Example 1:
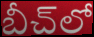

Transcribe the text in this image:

బీచ్‌లో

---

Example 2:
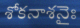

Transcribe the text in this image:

శోకనాశనైః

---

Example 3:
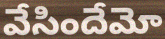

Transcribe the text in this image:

వేసిందేమో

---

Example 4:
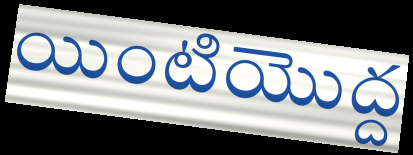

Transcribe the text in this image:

యింటియొద్ద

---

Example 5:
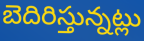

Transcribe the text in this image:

బెదిరిస్తున్నట్లు